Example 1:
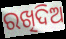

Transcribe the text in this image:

ରଖିଦିଅ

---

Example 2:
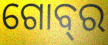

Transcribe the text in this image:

ଗୋବ୍‌ର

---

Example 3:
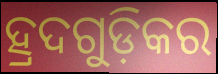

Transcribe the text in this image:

ହ୍ରଦଗୁଡ଼ିକର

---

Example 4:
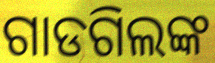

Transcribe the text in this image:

ଗାଡଗିଲଙ୍କ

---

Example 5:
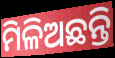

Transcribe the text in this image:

ମିଳିଅଛନ୍ତି